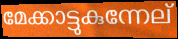
മേക്കാട്ടുകുന്നേല്